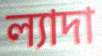
ল্যাদা